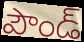
పౌండ్